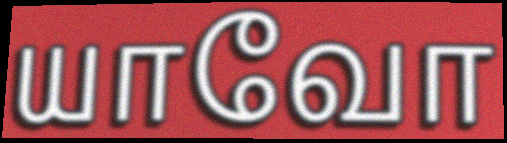
யாவோ